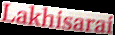
Lakhisarai